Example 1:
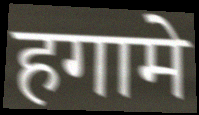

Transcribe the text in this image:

हगामे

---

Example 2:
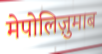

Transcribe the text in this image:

मेपोलिज़ुमाब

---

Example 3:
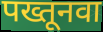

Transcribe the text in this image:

पख्तूनवा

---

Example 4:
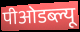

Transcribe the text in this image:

पीओडब्ल्यू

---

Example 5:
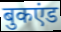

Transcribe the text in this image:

बुकएंड